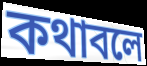
কথাবলে